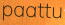
paattu